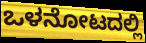
ಒಳನೋಟದಲ್ಲಿ